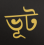
ভূট